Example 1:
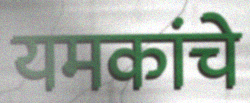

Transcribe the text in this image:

यमकांचे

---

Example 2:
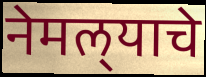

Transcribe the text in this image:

नेमल्याचे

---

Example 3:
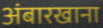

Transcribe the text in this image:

अंबारखाना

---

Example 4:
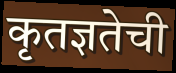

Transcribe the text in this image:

कृतज्ञतेची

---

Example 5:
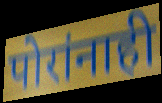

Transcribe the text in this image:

पोरांनाही